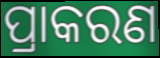
ପ୍ରାକରଣ